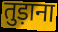
तुड़ाना